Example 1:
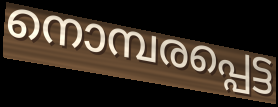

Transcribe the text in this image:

നൊമ്പരപ്പെട്ട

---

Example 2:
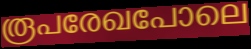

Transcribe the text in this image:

രൂപരേഖപോലെ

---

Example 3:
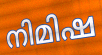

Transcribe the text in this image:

നിമിഷ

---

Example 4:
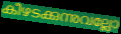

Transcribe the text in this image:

കീഴടക്കുന്നുവല്ലോ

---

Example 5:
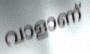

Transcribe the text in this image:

വാളാണ്